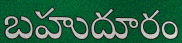
బహుదూరం